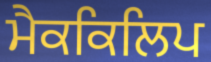
ਮੈਕਕਿਲਿਪ